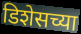
डिशेसच्या